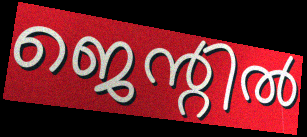
ജെന്റിൽ